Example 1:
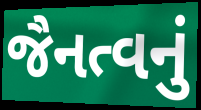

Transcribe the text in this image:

જૈનત્વનું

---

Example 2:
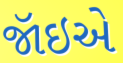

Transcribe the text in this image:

જૉઇએ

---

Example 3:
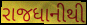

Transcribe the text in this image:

રાજધાનીથી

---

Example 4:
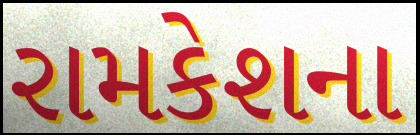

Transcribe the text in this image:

રામકેશના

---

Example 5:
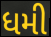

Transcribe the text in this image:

ધમી